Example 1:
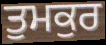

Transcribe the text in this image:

ਤੁਮਕੁਰ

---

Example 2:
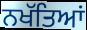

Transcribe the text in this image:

ਨਖੱਤਿਆਂ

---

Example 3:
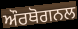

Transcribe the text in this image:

ਔਰਥੋਗਨਲ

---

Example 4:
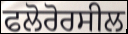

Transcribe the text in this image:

ਫਲੋਰੋਰਸੀਲ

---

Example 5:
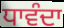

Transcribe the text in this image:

ਧਾਵੰਦਾ